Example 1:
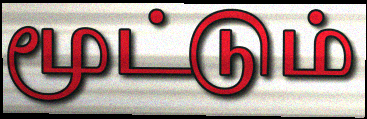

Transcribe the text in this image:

மூட்டும்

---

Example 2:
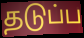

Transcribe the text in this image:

தடுப்ப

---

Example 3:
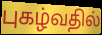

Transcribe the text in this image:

புகழ்வதில்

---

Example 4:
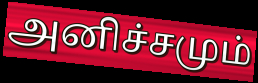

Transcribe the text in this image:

அனிச்சமும்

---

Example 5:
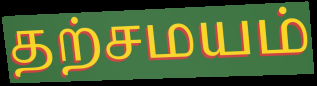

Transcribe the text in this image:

தற்சமயம்